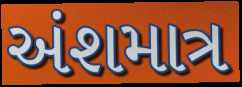
અંશમાત્ર